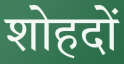
शोहदों